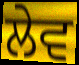
ਲੇਵ